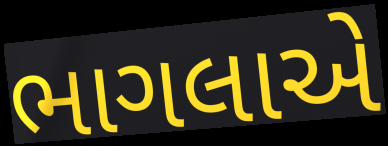
ભાગલાએ